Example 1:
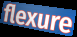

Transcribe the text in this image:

flexure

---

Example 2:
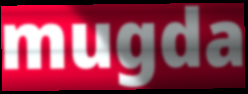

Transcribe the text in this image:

mugda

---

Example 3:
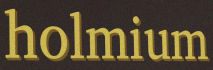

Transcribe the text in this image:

holmium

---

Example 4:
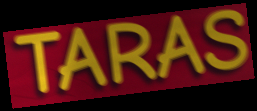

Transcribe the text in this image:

TARAS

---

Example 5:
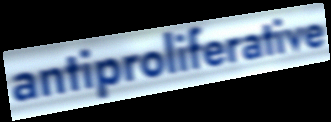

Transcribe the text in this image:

antiproliferative